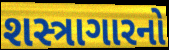
શસ્ત્રાગારનો